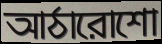
আঠারোশো